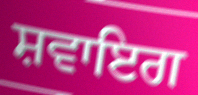
ਸ਼ਵਾਇਗ